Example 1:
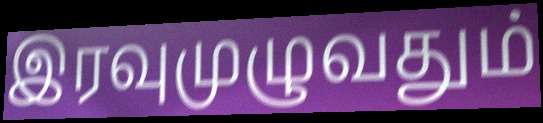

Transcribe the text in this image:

இரவுமுழுவதும்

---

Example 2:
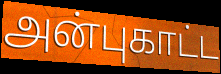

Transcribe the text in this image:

அன்புகாட்ட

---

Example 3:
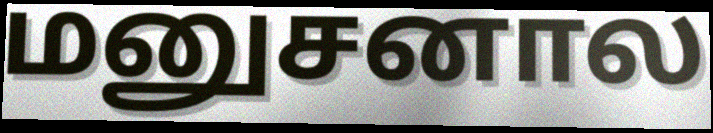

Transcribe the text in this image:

மனுசனால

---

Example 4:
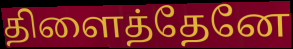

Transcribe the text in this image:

திளைத்தேனே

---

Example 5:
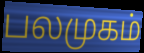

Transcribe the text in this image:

பலமுகம்